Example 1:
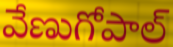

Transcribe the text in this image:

వేణుగోపాల్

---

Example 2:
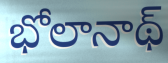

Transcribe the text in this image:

భోలానాథ్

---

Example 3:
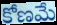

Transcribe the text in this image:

కోణమే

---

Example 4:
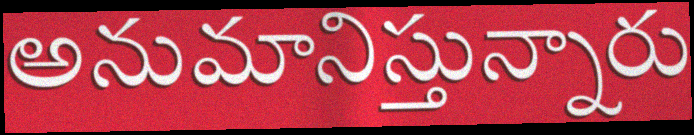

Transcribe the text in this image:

అనుమానిస్తున్నారు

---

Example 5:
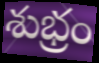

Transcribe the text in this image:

శుభ్రం